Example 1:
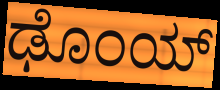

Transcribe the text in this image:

ಢೊಂಯ್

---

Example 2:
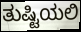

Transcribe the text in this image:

ತುಷ್ಟಿಯಲಿ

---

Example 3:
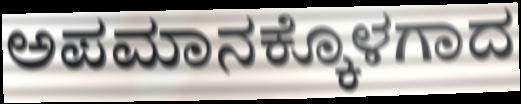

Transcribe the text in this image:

ಅಪಮಾನಕ್ಕೊಳಗಾದ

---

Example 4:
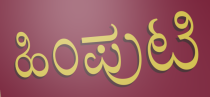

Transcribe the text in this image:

ಹಿಂಪುಟಿ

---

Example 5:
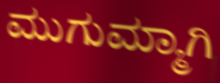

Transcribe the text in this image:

ಮುಗುಮ್ಮಾಗಿ